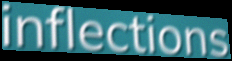
inflections